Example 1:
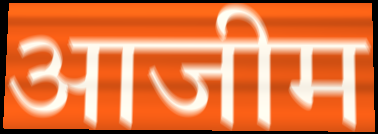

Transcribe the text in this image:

आजीम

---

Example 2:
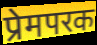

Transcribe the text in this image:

प्रेमपरक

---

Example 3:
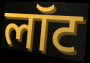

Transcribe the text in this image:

लॉट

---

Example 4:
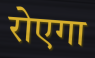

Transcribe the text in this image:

रोएगा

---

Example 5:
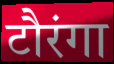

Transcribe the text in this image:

टौरंगा